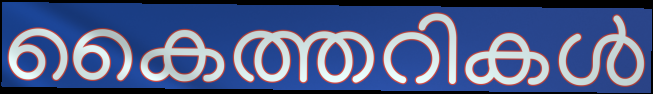
കൈത്തറികൾ